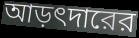
আড়ৎদারের